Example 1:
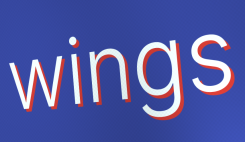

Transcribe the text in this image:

wings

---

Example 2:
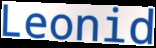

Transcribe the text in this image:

Leonid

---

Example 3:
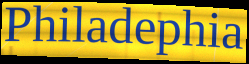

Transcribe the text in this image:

Philadephia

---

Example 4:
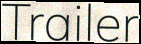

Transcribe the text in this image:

Trailer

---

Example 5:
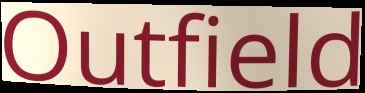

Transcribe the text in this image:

Outfield